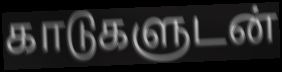
காடுகளுடன்